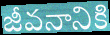
జీవనానికి